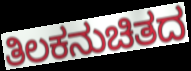
ತಿಲಕನುಚಿತದ